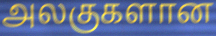
அலகுகளான